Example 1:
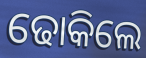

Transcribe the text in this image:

ଢୋକିଲେ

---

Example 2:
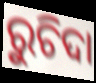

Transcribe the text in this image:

ରୁଚିଦା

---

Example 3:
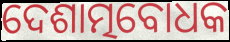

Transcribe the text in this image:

ଦେଶାତ୍ମବୋଧକ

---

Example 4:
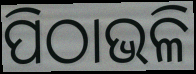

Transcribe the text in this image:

ପିଠାଭଳି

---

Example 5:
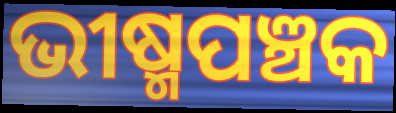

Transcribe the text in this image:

ଭୀଷ୍ମପଞ୍ଚକ